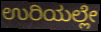
ಉರಿಯಲ್ಲೇ